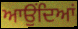
ਆਉਂਦਿਆਂ